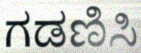
ಗಡಣಿಸಿ